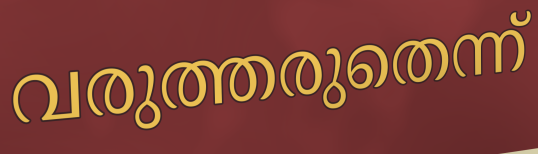
വരുത്തരുതെന്ന്